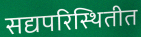
सद्यपरिस्थितीत